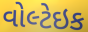
વોલ્ટેઇક